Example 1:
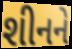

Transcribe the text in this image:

શીનને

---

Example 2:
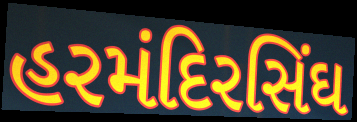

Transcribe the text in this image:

હરમંદિરસિંઘ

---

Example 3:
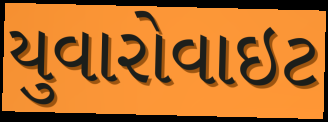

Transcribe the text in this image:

યુવારોવાઇટ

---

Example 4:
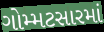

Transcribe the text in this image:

ગોમ્મટસારમાં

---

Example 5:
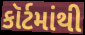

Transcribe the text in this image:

કૉર્ટમાંથી